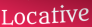
Locative